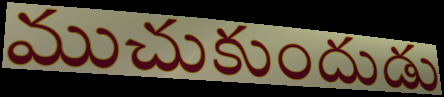
ముచుకుందుడు